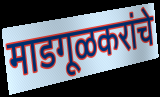
माडगूळकरांचे